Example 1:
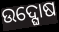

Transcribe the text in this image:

ଉଦ୍ଘୋଷ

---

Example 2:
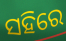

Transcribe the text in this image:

ସହିରେ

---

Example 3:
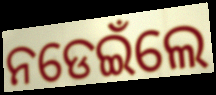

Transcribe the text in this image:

ନଡେଇଁଲେ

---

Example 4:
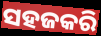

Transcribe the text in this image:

ସହଜକରି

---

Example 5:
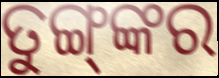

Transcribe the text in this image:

ତୁଙ୍ଗ୍‍ଙ୍କର